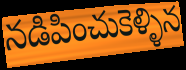
నడిపించుకెళ్ళిన